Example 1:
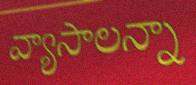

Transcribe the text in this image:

వ్యాసాలన్నా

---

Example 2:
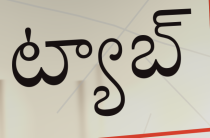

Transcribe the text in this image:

ట్యాబ్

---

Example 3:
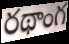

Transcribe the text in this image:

రథాంగ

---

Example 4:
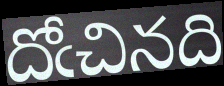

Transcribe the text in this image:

దోఁచినది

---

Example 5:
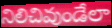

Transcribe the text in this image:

నిలిచివుండేలా